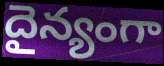
దైన్యంగా